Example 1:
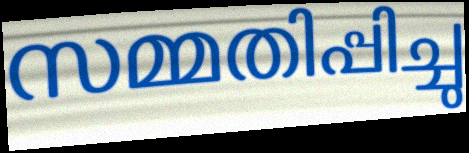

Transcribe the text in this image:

സമ്മതിപ്പിച്ചു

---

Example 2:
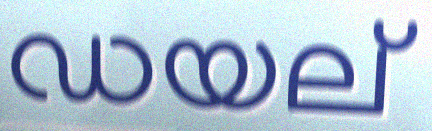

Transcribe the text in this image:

ഡയല്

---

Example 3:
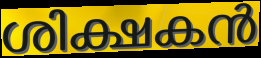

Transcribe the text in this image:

ശിക്ഷകൻ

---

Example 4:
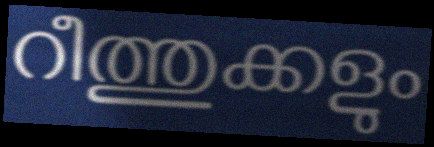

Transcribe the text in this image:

റീത്തുക്കളും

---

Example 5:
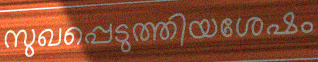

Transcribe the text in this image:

സുഖപ്പെടുത്തിയശേഷം